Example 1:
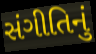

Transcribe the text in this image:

સંગીતિનું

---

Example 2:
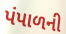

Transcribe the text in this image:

પંપાળની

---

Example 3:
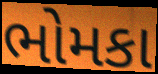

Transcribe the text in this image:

ભોમકા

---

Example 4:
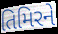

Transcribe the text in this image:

તિમિરને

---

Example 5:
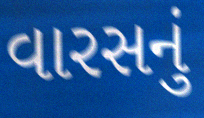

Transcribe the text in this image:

વારસનું